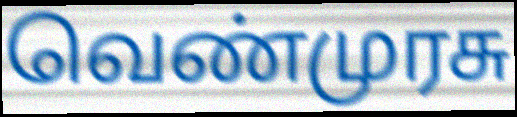
வெண்முரசு